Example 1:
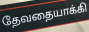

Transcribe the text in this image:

தேவதையாக்கி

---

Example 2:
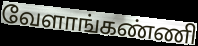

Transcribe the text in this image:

வேளாங்கண்ணி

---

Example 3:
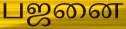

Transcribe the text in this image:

பஜனை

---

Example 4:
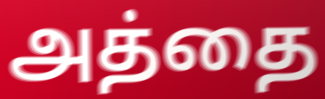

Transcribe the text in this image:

அத்தை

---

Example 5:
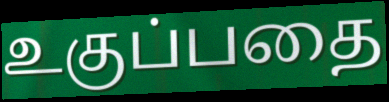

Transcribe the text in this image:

உகுப்பதை